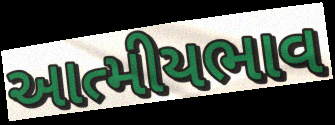
આત્મીયભાવ